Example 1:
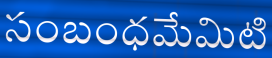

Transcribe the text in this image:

సంబంధమేమిటి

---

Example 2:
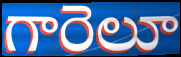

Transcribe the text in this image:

గారెలూ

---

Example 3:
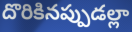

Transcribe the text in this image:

దొరికినప్పుడల్లా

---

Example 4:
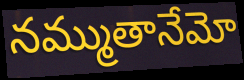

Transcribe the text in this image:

నమ్ముతానేమో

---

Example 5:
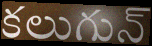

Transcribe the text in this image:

కలుగున్